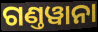
ଗଣ୍ତୱାନା